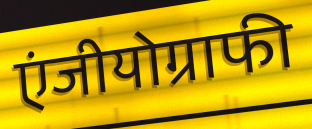
एंजीयोग्राफी